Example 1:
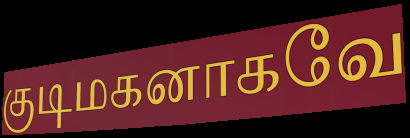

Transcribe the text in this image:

குடிமகனாகவே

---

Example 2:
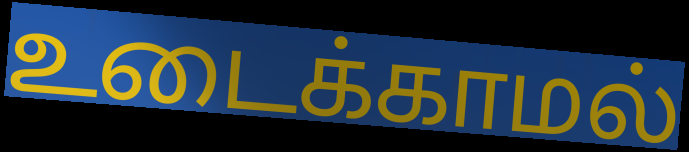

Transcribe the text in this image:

உடைக்காமல்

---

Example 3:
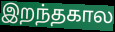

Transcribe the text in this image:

இறந்தகால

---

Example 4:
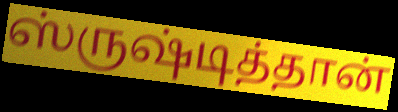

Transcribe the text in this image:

ஸ்ருஷ்டித்தான்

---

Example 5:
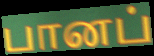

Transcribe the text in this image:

பானப்